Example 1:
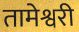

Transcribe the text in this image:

तामेश्वरी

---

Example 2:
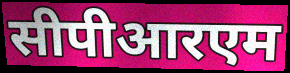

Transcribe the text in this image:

सीपीआरएम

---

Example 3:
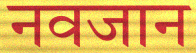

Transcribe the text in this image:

नवजान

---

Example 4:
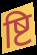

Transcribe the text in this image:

ष्टि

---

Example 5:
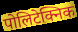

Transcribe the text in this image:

पोलिटेक्निक